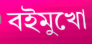
বইমুখো